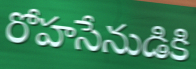
రోహసేనుడికి